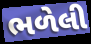
ભળેલી